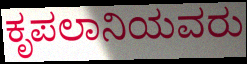
ಕೃಪಲಾನಿಯವರು